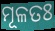
ମୂଳତଃ